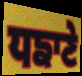
ਧਙਾਣੇ